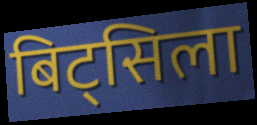
बिट्सिला